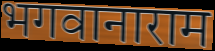
भगवानाराम